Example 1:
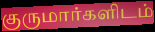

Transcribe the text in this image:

குருமார்களிடம்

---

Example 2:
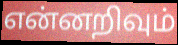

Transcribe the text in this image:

என்னறிவும்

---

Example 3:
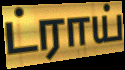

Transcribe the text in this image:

ட்ராய்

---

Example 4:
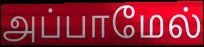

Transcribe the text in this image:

அப்பாமேல்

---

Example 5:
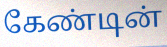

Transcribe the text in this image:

கேண்டின்